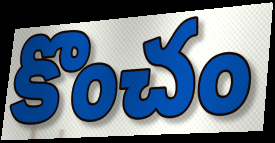
కొంచం